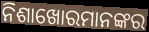
ନିଶାଖୋରମାନଙ୍କର